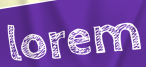
lorem